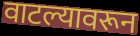
वाटल्यावरून